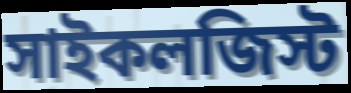
সাইকলজিস্ট